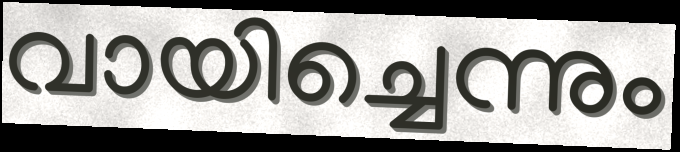
വായിച്ചെന്നും